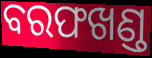
ବରଫଖଣ୍ଡ